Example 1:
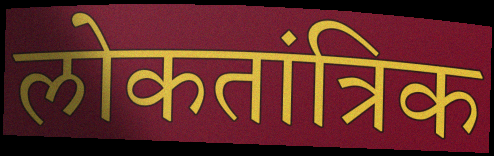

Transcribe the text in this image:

लोकतांत्रिक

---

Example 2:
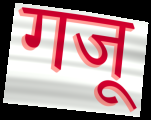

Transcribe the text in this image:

गजू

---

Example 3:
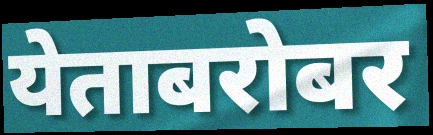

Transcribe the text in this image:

येताबरोबर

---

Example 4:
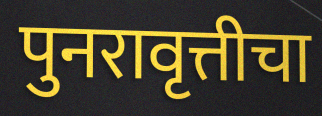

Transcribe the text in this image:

पुनरावृत्तीचा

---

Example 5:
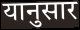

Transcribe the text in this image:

यानुसार